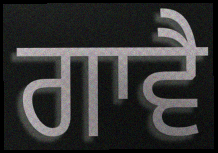
ਗਾਵੈ